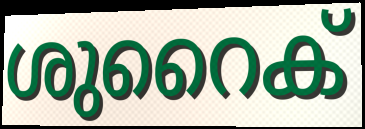
ശുറൈക്